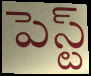
పెస్ట్